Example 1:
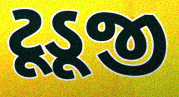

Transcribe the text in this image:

ટૂડૂજી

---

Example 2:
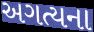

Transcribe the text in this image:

અગત્યના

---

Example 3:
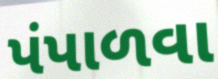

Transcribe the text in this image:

પંપાળવા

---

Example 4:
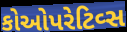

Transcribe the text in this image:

કોઓપરેટિવ્સ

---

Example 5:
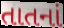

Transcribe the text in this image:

તાતનાં